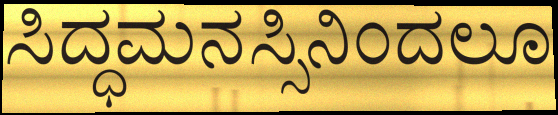
ಸಿದ್ಧಮನಸ್ಸಿನಿಂದಲೂ